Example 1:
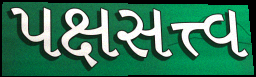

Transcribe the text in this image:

પક્ષસત્ત્વ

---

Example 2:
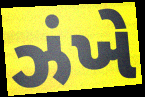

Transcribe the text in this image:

ઝંખે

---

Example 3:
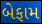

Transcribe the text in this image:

બેફામ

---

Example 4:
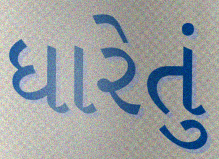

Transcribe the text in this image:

ધારેતું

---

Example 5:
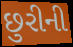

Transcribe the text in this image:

છુરીની